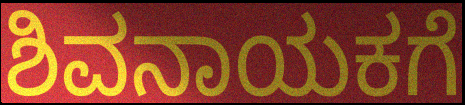
ಶಿವನಾಯಕಗೆ